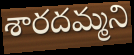
శారదమ్మని